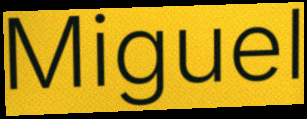
Miguel